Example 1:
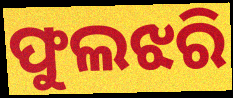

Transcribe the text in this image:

ଫୁଲଝରି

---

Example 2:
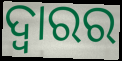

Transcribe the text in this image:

ଦ୍ୱାରର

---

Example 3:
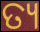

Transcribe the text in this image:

ତ୍ୟ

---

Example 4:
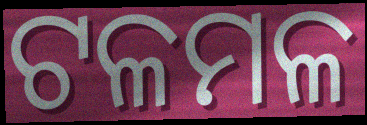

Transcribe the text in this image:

ଟଳମଳ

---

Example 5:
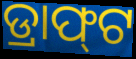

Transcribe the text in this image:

ଡ୍ରାଫ୍‌ଟ